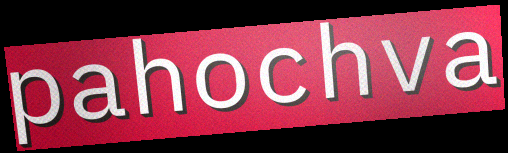
pahochva